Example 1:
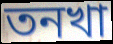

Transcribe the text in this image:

তনখা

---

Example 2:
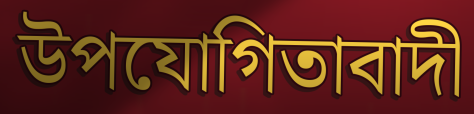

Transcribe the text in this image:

উপযোগিতাবাদী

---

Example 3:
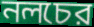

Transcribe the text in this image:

নলচের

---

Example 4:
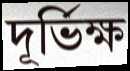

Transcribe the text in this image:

দূর্ভিক্ষ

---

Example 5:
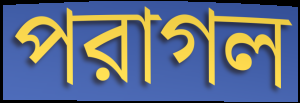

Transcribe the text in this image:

পরাগল